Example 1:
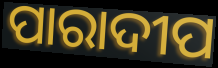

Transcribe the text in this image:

ପାରାଦୀପ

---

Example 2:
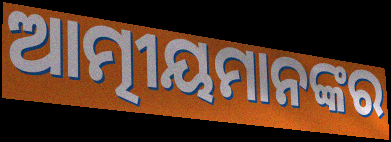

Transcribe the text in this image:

ଆତ୍ମୀୟମାନଙ୍କର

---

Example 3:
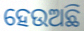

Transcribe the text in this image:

ହେଉଅଛି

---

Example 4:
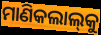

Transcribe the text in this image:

ମାଣିକଲାଲ୍‍କୁ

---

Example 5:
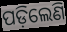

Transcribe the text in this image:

ପଡ଼ିଲେଣି